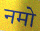
नमो